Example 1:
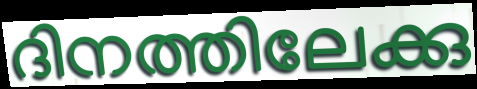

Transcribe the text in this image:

ദിനത്തിലേക്കു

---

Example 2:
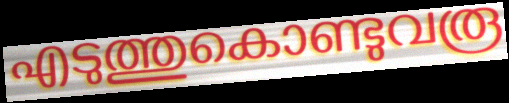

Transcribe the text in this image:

എടുത്തുകൊണ്ടുവരൂ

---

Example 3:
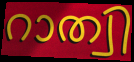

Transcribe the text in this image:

റാത്വി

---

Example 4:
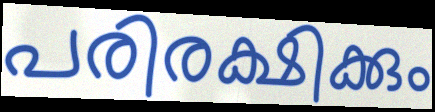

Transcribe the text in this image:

പരിരക്ഷിക്കും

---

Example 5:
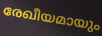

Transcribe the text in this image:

രേഖീയമായും